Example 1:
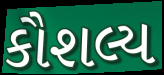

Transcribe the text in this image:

કૌશલ્ય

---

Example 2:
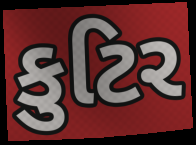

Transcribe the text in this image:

કુટિર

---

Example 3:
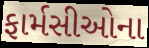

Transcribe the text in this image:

ફાર્મસીઓના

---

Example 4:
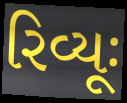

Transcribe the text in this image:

રિવ્યૂઃ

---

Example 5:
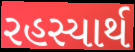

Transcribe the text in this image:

રહસ્યાર્થ